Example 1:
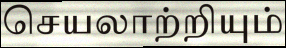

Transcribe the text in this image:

செயலாற்றியும்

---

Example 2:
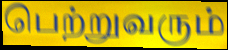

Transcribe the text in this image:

பெற்றுவரும்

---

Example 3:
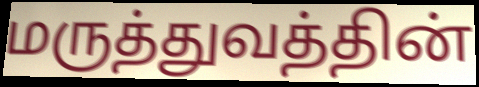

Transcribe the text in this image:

மருத்துவத்தின்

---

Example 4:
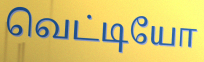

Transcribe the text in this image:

வெட்டியோ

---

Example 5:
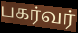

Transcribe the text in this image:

பகர்வர்